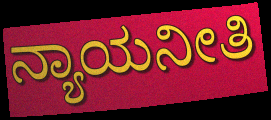
ನ್ಯಾಯನೀತಿ